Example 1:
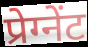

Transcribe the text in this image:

प्रेग्नेंट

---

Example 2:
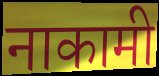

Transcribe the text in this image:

नाकामी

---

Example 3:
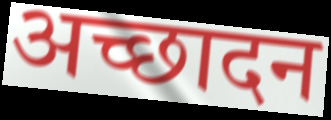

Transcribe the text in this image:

अच्छादन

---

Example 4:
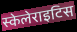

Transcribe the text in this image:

स्केलेराइटिस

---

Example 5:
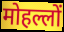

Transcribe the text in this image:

मोहल्लों